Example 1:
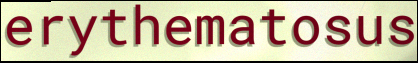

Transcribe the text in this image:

erythematosus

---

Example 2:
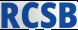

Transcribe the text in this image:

RCSB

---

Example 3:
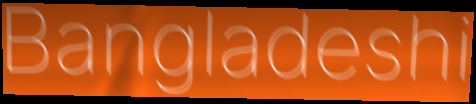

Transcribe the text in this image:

Bangladeshi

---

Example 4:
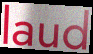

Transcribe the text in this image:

laud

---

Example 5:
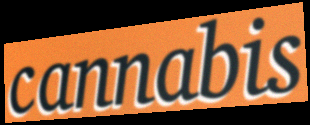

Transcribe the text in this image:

cannabis